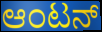
ಆಂಟನ್